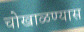
चोखाळण्यास